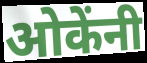
ओकेंनी